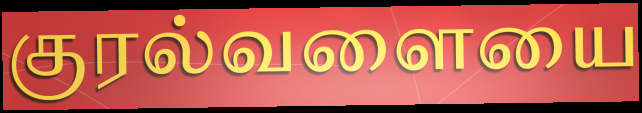
குரல்வளையை